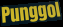
Punggol